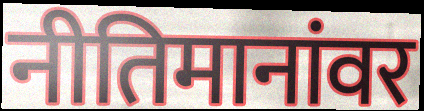
नीतिमानांवर